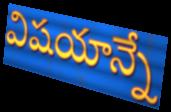
విషయాన్నే